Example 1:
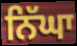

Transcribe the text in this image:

ਨਿੱਘਾ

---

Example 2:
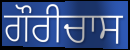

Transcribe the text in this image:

ਗੌਰੀਚਾਸ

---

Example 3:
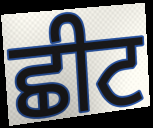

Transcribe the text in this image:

ਛੀਟ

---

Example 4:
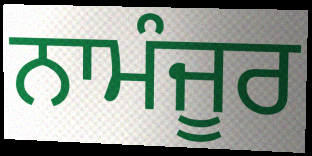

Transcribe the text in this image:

ਨਾਮੰਜੂਰ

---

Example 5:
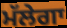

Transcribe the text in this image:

ਮੱਲੇਗਾ